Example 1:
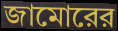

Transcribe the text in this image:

জামোরের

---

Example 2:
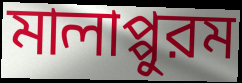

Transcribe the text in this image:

মালাপ্পুরম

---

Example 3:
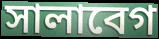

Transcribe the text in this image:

সালাবেগ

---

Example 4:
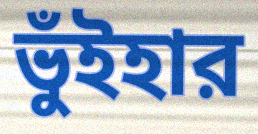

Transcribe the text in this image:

ভুঁইহার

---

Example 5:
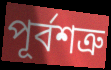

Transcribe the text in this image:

পূর্বশত্রু